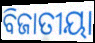
ବିଜାତୀୟା